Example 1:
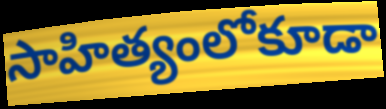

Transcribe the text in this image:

సాహిత్యంలోకూడా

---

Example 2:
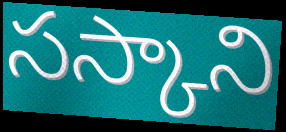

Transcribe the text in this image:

సస్కాని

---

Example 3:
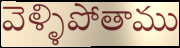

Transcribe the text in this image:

వెళ్ళిపోతాము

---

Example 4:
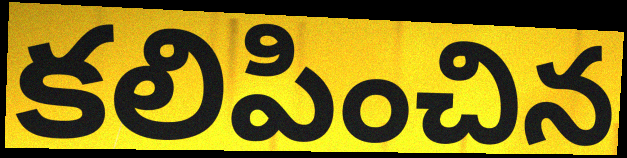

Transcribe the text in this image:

కలిపించిన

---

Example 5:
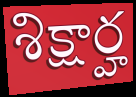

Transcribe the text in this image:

శిక్షార్హ